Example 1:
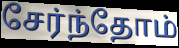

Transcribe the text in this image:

சேர்ந்தோம்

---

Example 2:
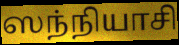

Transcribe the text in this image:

ஸந்நியாசி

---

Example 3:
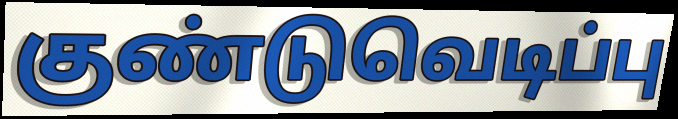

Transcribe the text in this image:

குண்டுவெடிப்பு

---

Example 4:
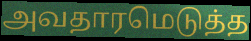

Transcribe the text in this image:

அவதாரமெடுத்த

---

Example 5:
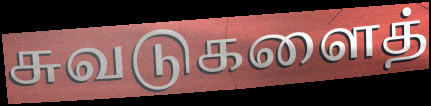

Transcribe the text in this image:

சுவடுகளைத்